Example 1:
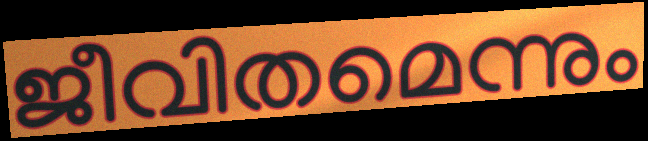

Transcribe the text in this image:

ജീവിതമെന്നും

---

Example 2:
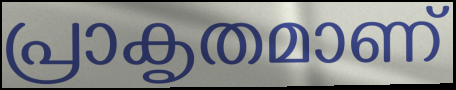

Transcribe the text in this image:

പ്രാകൃതമാണ്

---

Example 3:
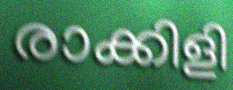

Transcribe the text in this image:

രാക്കിളി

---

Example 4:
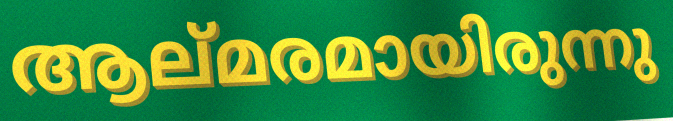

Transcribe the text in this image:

ആല്മരമായിരുന്നു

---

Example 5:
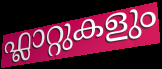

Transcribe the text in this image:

ഫ്ലാറ്റുകളും